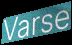
Varse